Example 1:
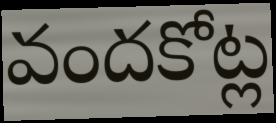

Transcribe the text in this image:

వందకోట్ల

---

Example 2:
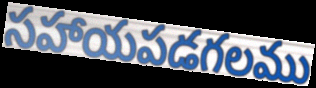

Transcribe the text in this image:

సహాయపడగలము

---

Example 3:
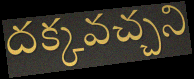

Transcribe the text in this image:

దక్కవచ్చని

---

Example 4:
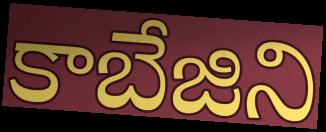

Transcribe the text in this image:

కాబేజిని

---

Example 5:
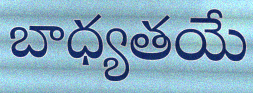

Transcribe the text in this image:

బాధ్యతయే